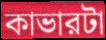
কাভারটা